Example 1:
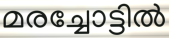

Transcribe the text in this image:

മരച്ചോട്ടിൽ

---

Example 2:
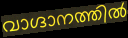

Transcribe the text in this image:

വാഗ്ദാനത്തിൽ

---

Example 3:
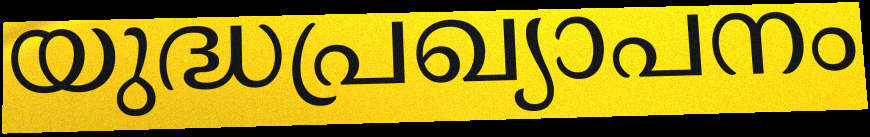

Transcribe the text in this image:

യുദ്ധപ്രഖ്യാപനം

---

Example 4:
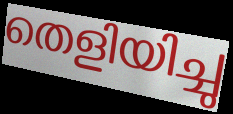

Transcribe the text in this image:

തെളിയിച്ചു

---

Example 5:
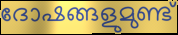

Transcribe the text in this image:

ദോഷങ്ങളുമുണ്ട്